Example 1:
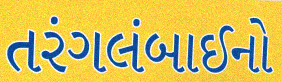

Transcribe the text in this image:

તરંગલંબાઈનો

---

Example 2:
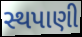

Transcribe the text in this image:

સ્થપાણી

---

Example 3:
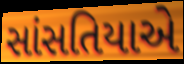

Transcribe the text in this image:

સાંસતિયાએ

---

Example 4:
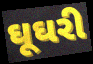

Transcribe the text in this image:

ઘૂઘરી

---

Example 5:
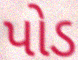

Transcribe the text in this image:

પોડ